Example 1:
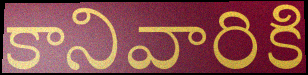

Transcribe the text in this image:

కానివారికి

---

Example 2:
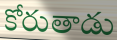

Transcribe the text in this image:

కోరుతాడు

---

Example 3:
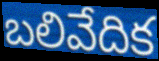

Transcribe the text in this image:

బలివేదిక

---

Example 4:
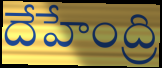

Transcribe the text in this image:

దేహేంద్రి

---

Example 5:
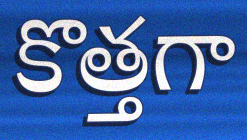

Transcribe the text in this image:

కొత్తగా